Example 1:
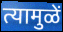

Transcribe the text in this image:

त्यामुळें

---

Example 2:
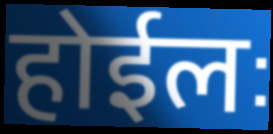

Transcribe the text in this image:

होईलः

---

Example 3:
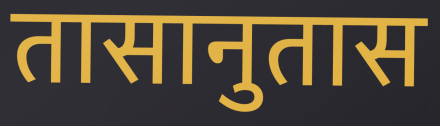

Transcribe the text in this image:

तासानुतास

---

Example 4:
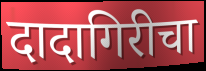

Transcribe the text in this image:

दादागिरीचा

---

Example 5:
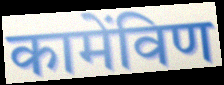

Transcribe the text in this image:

कामेंविण